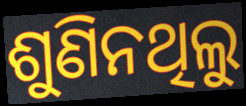
ଶୁଣିନଥିଲୁ